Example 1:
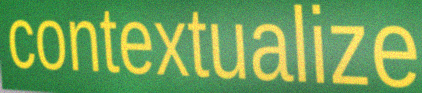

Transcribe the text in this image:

contextualize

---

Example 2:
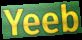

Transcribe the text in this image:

Yeeb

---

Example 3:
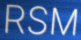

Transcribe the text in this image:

RSM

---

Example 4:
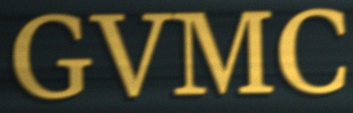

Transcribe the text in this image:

GVMC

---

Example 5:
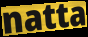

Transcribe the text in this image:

natta